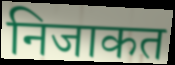
निजाकत